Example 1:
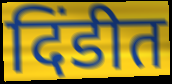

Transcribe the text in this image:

दिंडीत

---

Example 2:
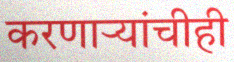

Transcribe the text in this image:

करणाऱ्यांचीही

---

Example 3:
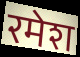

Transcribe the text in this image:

रमेश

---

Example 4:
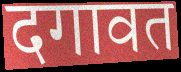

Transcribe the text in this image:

दगावत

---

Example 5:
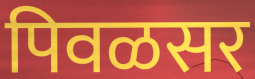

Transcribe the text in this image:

पिवळसर